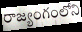
రాజ్యంగంలోని